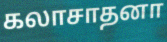
கலாசாதனா